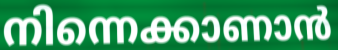
നിന്നെക്കാണാൻ